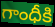
గాంధీకి